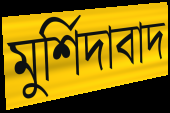
মুর্শিদাবাদ